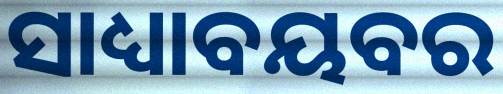
ସାଧ୍ୟାବୟବର